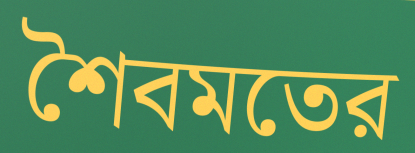
শৈবমতের